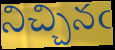
నిచ్చినఁ